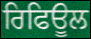
ਰਿਫਿਊਲ